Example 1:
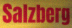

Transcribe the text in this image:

Salzberg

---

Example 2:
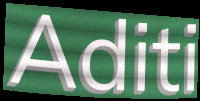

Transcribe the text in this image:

Aditi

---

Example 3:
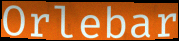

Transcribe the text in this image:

Orlebar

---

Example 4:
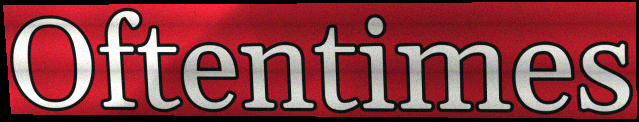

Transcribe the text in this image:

Oftentimes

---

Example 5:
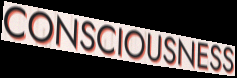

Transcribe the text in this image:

CONSCIOUSNESS